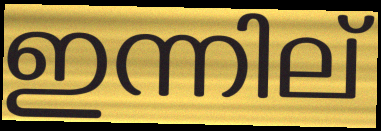
ഇന്നില്